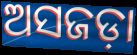
ଅସଜଡ଼ା